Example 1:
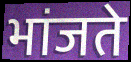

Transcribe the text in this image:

भांजते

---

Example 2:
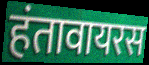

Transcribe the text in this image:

हंतावायरस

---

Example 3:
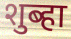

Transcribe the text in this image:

शुब्हा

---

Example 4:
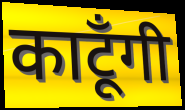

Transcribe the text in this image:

काटूँगी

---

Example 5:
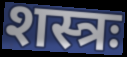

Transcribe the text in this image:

शस्त्रः